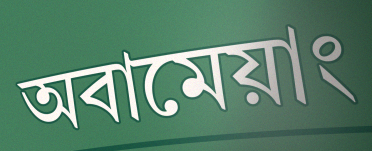
অবামেয়াং